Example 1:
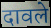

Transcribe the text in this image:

दावले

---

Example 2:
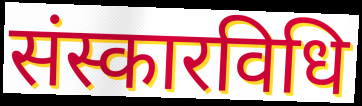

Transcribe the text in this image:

संस्कारविधि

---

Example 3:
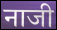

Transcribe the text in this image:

नाजी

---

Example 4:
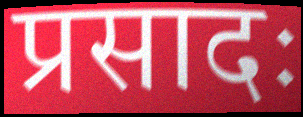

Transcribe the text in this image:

प्रसादः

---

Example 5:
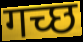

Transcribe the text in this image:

गच्छ